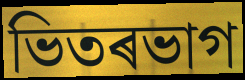
ভিতৰভাগ